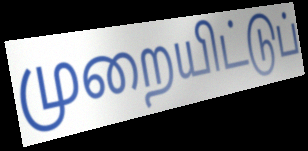
முறையிட்டுப்